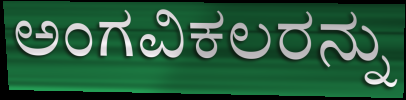
ಅಂಗವಿಕಲರನ್ನು